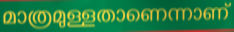
മാത്രമുള്ളതാണെന്നാണ്